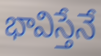
భావిస్తేనే